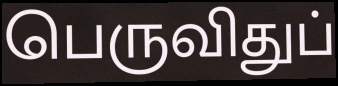
பெருவிதுப்